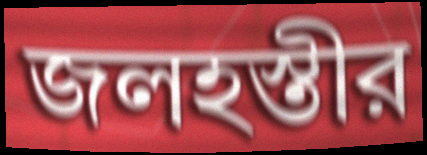
জলহস্তীর